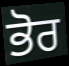
ਭੋਰ